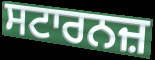
ਸਟਾਰਨਜ਼